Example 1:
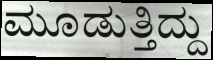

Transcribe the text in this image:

ಮೂಡುತ್ತಿದ್ದು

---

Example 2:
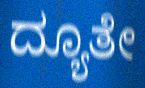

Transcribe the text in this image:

ದ್ಯೂತೇ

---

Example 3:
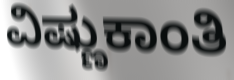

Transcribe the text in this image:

ವಿಷ್ಣುಕಾಂತಿ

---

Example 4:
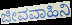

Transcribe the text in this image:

ಜೀವವಾಹಿನಿ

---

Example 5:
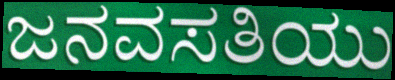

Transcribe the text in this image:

ಜನವಸತಿಯು